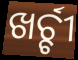
ଖର୍ଚ୍ଚୀ